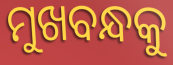
ମୁଖବନ୍ଧକୁ